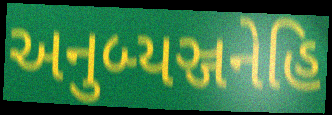
અનુબ્યઞ્જનેહિ